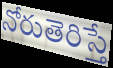
నోరుతెరిస్తే